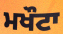
ਮਖੌਟਾ